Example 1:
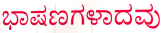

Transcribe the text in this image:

ಭಾಷಣಗಳಾದವು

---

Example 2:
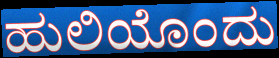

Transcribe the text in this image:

ಹುಲಿಯೊಂದು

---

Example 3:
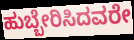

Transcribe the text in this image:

ಹುಬ್ಬೇರಿಸಿದವರೇ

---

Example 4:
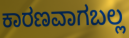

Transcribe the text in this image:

ಕಾರಣವಾಗಬಲ್ಲ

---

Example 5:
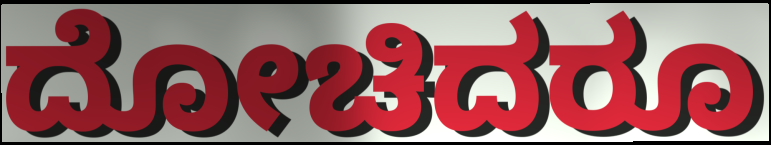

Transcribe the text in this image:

ದೋಚಿದರೂ